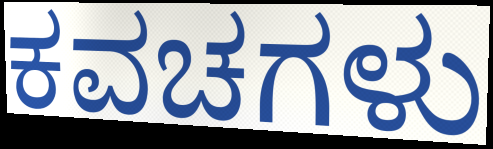
ಕವಚಗಳು